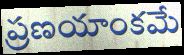
ప్రణయాంకమే